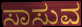
ಸಾಸುವ